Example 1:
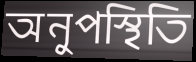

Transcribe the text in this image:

অনুপস্থিতি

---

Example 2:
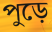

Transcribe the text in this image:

পুড়ে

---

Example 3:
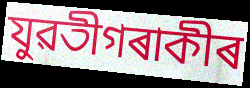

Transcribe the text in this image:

যুৱতীগৰাকীৰ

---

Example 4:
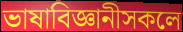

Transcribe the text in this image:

ভাষাবিজ্ঞানীসকলে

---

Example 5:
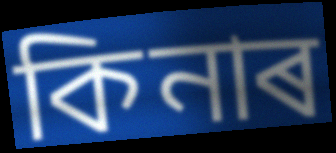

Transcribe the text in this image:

কিনাৰ